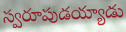
స్వరూపుడయ్యాడు